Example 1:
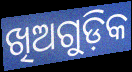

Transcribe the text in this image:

ଖିଅଗୁଡ଼ିକ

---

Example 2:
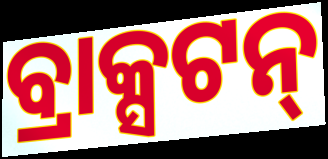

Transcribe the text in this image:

ବ୍ରାକ୍ସଟନ୍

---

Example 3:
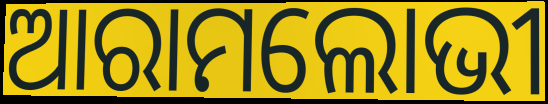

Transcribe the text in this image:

ଆରାମଲୋଭୀ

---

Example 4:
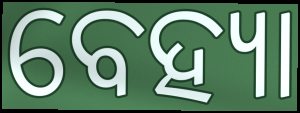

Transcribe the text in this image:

ବେହ୍ୟା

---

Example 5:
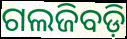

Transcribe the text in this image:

ଗଲଜିବଡ଼ି